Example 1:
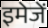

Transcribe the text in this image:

इमेजें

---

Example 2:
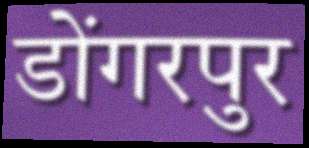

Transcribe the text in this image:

डोंगरपुर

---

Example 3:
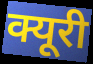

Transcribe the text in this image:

क्यूरी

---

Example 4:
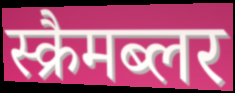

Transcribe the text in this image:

स्क्रैमब्लर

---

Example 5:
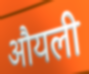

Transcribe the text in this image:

औयली